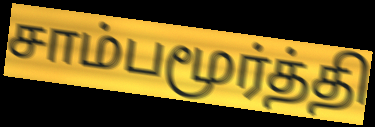
சாம்பமூர்த்தி